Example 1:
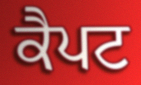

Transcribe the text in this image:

ਕੈਪਟ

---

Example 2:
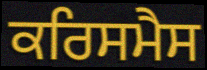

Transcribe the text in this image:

ਕਰਿਸਮੈਸ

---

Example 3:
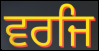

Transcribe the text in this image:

ਵਰਜਿ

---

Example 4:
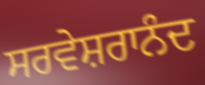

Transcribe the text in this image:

ਸਰਵੇਸ਼ਰਾਨੰਦ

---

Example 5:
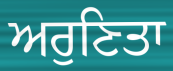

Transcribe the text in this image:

ਅਰੁਣਿਤਾ